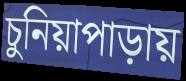
চুনিয়াপাড়ায়